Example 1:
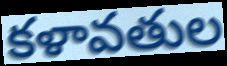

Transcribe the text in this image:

కళావతుల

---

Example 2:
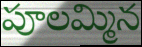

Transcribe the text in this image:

పూలమ్మిన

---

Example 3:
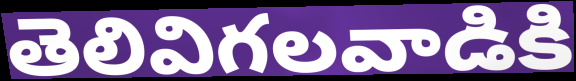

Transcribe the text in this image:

తెలివిగలవాడికి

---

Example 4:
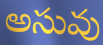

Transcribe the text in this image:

అసువు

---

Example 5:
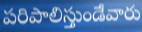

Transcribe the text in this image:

పరిపాలిస్తుండేవారు